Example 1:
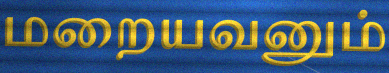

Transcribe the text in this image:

மறையவனும்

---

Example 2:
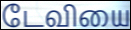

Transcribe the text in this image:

டேவியை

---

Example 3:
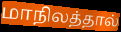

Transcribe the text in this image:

மாநிலத்தால்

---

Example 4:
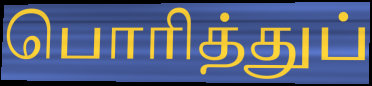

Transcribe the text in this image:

பொரித்துப்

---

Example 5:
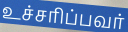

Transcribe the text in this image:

உச்சரிப்பவர்